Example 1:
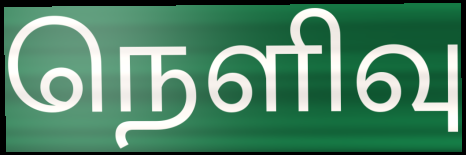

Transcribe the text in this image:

நெளிவு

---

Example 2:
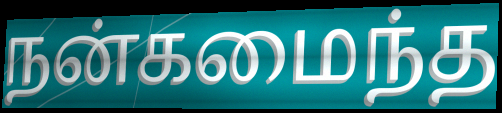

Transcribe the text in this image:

நன்கமைந்த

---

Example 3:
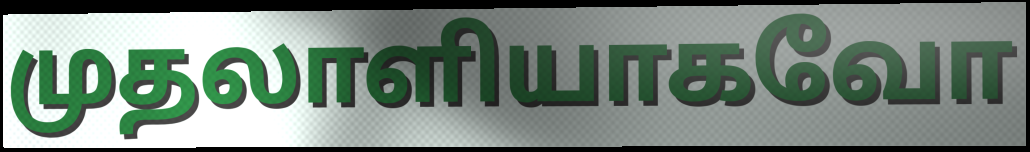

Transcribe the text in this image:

முதலாளியாகவோ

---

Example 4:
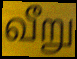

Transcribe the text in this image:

வீறு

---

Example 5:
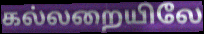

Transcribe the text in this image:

கல்லறையிலே